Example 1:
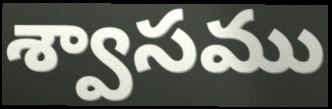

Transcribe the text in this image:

శ్వాసము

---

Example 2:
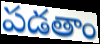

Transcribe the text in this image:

పడతాం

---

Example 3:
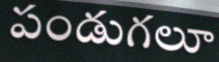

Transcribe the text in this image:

పండుగలూ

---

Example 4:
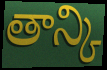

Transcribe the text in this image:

తాన్కి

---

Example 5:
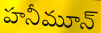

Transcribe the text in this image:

హనీమూన్